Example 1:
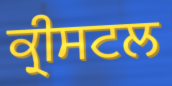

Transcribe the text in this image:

ਕ੍ਰੀਸਟਲ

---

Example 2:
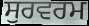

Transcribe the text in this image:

ਸੁਰਵਰਮ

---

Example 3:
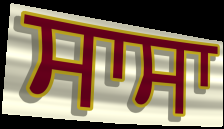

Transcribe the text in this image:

ਸਾਸਾ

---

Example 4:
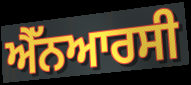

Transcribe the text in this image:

ਐੱਨਆਰਸੀ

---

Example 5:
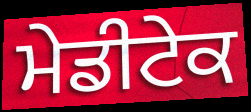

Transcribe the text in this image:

ਮੇਡੀਟੇਕ